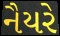
નૈયરે